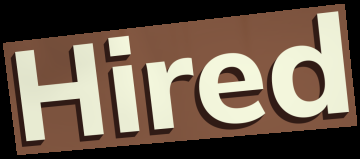
Hired